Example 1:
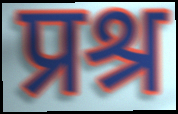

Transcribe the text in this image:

प्रश्र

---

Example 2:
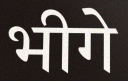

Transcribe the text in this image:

भीगे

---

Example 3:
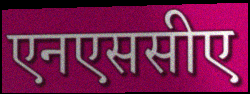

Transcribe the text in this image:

एनएससीए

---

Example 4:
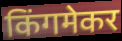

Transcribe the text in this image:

किंगमेकर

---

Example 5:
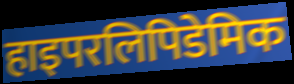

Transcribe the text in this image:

हाइपरलिपिडेमिक